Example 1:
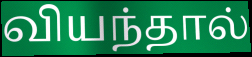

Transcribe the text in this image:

வியந்தால்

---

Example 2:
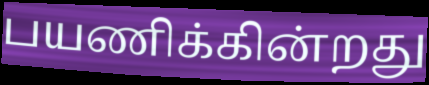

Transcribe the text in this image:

பயணிக்கின்றது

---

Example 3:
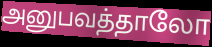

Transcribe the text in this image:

அனுபவத்தாலோ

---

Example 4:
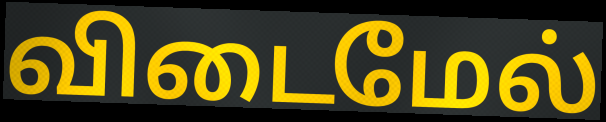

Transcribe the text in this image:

விடைமேல்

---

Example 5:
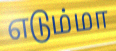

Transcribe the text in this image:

எடும்மா